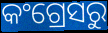
କଂଗ୍ରେସରୁ